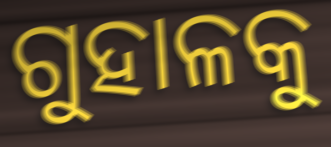
ଗୁହାଳକୁ